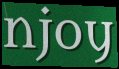
njoy